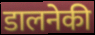
डालनेकी